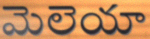
మెలెయా